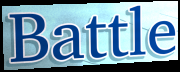
Battle